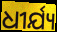
ଧୀର୍ଯ୍ୟ